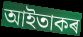
আইতাকৰ